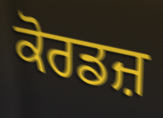
ਕੋਰਡਜ਼